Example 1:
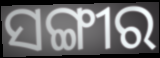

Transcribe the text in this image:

ସଙ୍ଗୀର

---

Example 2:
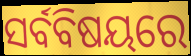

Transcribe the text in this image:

ସର୍ବବିଷୟରେ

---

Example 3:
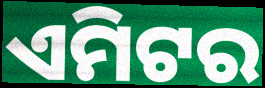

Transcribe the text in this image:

ଏମିଟର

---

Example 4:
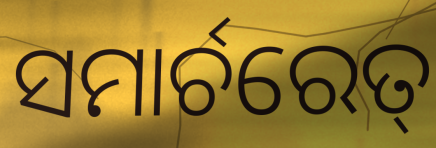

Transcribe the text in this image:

ସମାର୍ଚରେତ୍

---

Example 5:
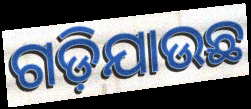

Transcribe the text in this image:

ଗଡ଼ିଯାଉଛ